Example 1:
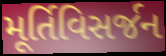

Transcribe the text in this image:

મૂર્તિવિસર્જન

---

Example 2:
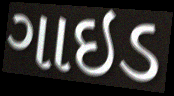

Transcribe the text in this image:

ગાઇડ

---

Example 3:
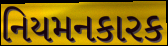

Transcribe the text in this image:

નિયમનકારક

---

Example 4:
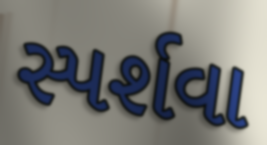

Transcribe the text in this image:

સ્પર્શવા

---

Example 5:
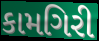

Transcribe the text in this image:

કામગિરી